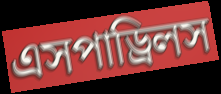
এসপাড্রিলস